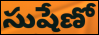
సుషేణో